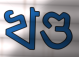
খণ্ড